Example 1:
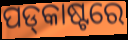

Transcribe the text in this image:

ପଡ୍‌କାଷ୍ଟରେ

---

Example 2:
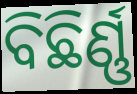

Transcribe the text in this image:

ବିଛିର୍ଣ୍ଣ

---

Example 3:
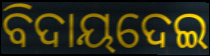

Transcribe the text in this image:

ବିଦାୟଦେଇ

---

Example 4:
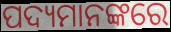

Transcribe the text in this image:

ପଦ୍ୟମାନଙ୍କରେ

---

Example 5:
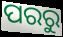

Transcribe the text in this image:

ପରରୁ